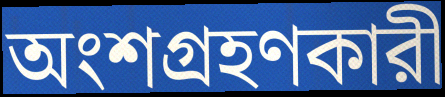
অংশগ্রহণকারী